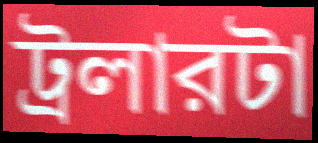
ট্রলারটা